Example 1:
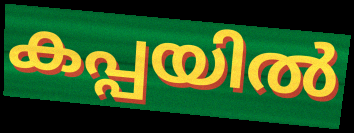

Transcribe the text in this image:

കപ്പയിൽ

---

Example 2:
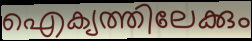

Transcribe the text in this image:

ഐക്യത്തിലേക്കും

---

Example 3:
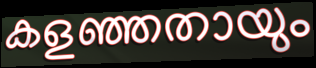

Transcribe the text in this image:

കളഞ്ഞതായും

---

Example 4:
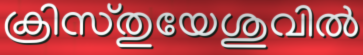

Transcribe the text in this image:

ക്രിസ്തുയേശുവിൽ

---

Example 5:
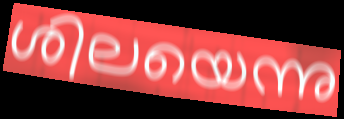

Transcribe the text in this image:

ശിലയെന്നു